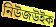
নিউজউইক